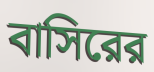
বাসিরের